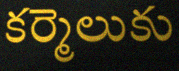
కర్మెలుకు